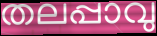
തലപ്പാവു